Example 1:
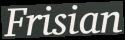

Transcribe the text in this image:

Frisian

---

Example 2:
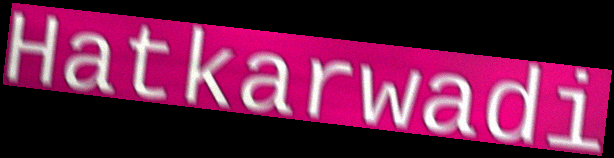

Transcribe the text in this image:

Hatkarwadi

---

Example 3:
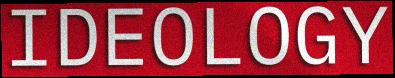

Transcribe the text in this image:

IDEOLOGY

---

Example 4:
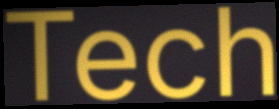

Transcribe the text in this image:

Tech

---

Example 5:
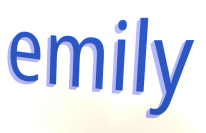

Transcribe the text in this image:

emily